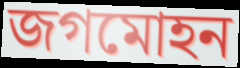
জগমোহন